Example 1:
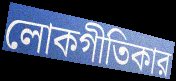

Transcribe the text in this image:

লোকগীতিকার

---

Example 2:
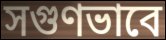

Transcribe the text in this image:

সগুণভাবে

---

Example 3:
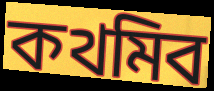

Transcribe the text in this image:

কথমিব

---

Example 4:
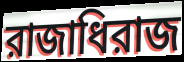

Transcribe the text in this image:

রাজাধিরাজ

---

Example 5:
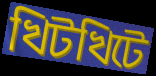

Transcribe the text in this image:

খিটখিটে